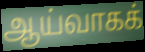
ஆய்வாகக்